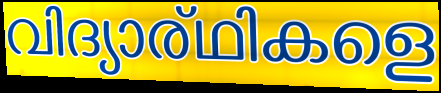
വിദ്യാര്ഥികളെ